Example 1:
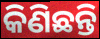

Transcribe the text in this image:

କିଣିଛନ୍ତି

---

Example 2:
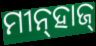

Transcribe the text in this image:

ମୀନ୍‌ହାଜ୍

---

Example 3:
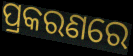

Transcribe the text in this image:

ପ୍ରକରଣରେ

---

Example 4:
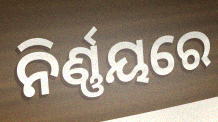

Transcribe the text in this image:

ନିର୍ଣ୍ଣୟରେ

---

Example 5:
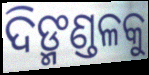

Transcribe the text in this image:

ଦିଙ୍ମଣ୍ଡଳକୁ